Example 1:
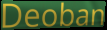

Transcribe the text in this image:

Deoban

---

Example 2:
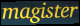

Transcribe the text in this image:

magister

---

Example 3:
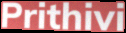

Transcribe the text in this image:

Prithivi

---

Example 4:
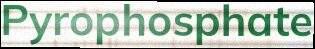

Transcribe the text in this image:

Pyrophosphate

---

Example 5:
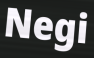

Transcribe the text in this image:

Negi